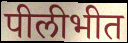
पीलीभीत